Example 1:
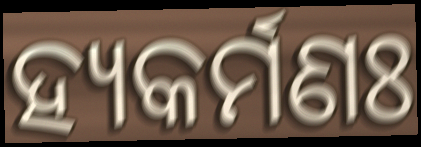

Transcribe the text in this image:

ହ୍ୟକର୍ମଣଃ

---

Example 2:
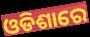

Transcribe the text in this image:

ଓଡିଶାରେ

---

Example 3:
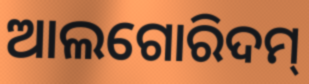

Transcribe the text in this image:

ଆଲଗୋରିଦମ୍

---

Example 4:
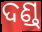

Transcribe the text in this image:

ଦଣ୍ଡ୍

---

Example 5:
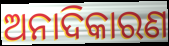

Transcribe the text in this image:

ଅନାଦିକାରଣ